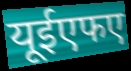
यूईएफए